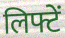
लिफ्टें